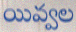
యివ్వల